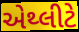
એથ્લીટે